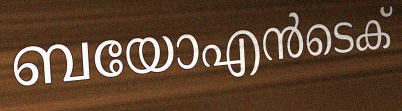
ബയോഎൻടെക്